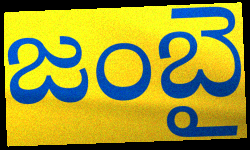
జంబై